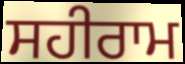
ਸਹੀਰਾਮ